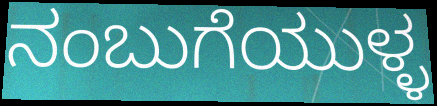
ನಂಬುಗೆಯುಳ್ಳ